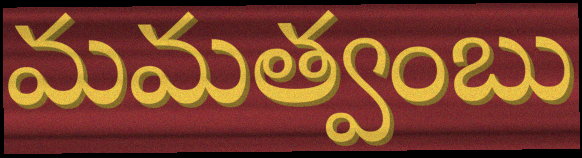
మమత్వంబు